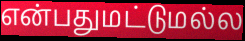
என்பதுமட்டுமல்ல